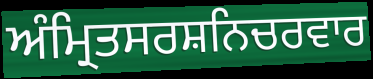
ਅੰਮ੍ਰਿਤਸਰਸ਼ਨਿਚਰਵਾਰ